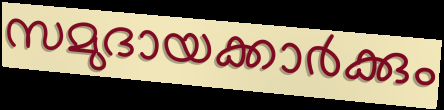
സമുദായക്കാർക്കും